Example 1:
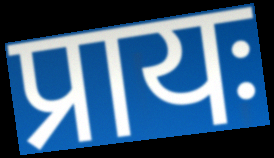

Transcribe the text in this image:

प्रायः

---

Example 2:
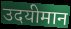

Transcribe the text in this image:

उदयीमान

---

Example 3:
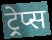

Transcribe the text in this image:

ट्रेप्स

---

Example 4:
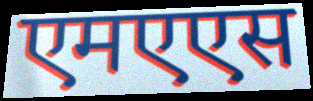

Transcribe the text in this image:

एमएएस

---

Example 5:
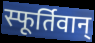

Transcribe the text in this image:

स्फूर्तिवान्